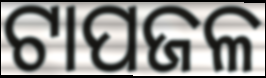
ଟାପଜଳ